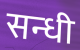
सन्धी